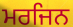
ਮਰਜਿਨ